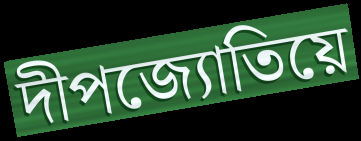
দীপজ্যোতিয়ে